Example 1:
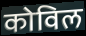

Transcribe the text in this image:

कोविल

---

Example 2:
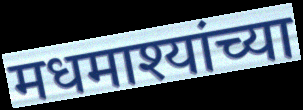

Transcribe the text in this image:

मधमाश्‍यांच्या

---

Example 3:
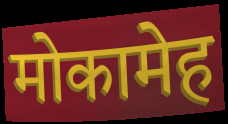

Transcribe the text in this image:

मोकामेह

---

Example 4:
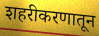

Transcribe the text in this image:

शहरीकरणातून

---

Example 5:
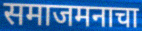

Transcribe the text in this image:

समाजमनाचा